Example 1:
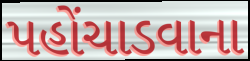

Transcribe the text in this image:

પહોંચાડવાના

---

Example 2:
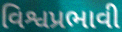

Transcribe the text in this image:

વિશ્વપ્રભાવી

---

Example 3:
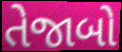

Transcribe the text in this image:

તેજાબો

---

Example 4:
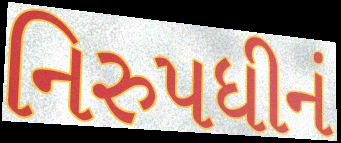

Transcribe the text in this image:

નિરુપધીનં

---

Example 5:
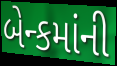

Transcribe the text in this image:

બેન્કમાંની